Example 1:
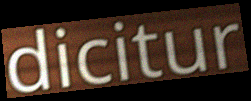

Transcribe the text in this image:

dicitur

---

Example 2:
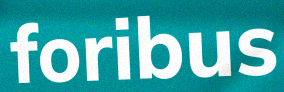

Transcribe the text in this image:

foribus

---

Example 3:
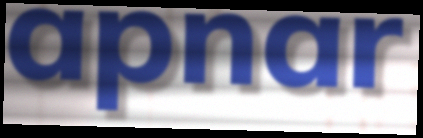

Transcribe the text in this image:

apnar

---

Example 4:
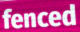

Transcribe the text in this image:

fenced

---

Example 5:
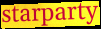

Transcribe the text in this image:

starparty